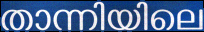
താന്നിയിലെ